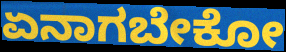
ಏನಾಗಬೇಕೋ